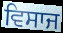
ਵਿਸਾਜ